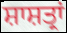
ਸ਼ਾਸ਼ਤ੍ਰਾਂ